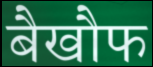
बैखौफ